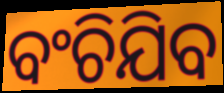
ବଂଚିଯିବ